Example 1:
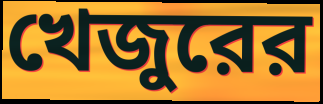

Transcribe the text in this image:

খেজুরের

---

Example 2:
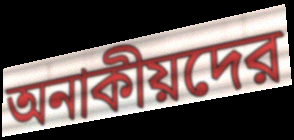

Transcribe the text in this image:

অনাকীয়দের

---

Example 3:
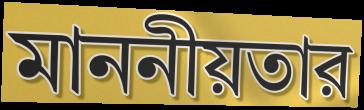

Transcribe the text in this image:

মাননীয়তার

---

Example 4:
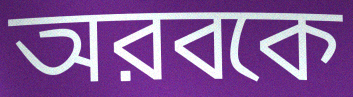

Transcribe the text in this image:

অরবকে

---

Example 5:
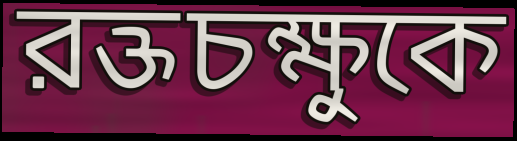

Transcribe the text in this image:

রক্তচক্ষুকে